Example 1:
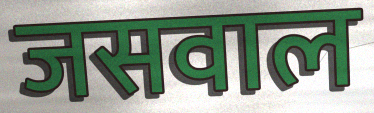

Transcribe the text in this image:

जसवाल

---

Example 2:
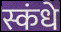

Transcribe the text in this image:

स्कंधे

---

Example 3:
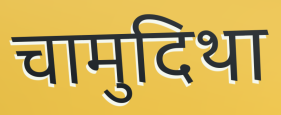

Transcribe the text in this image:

चामुदिथा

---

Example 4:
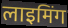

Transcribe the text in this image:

लाइमिंग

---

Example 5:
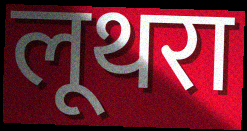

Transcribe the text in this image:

लूथरा